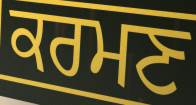
ਕਰਮਣ